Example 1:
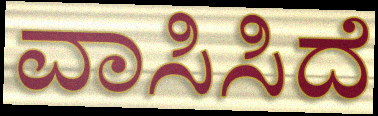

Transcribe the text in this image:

ವಾಸಿಸಿದೆ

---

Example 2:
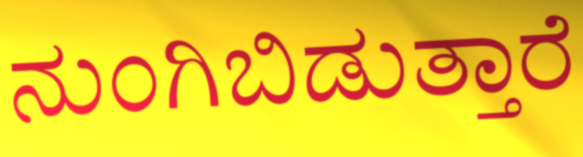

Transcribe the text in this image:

ನುಂಗಿಬಿಡುತ್ತಾರೆ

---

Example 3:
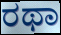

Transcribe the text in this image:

ರಥಾ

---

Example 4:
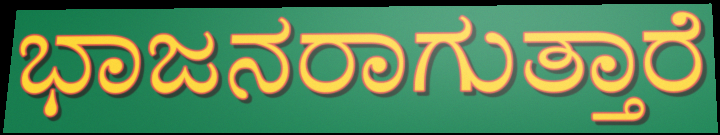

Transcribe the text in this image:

ಭಾಜನರಾಗುತ್ತಾರೆ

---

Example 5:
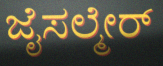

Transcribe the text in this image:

ಜೈಸಲ್ಮೇರ್